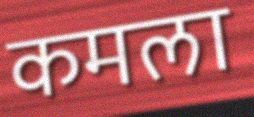
कमला